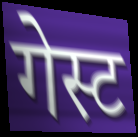
गेस्ट